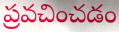
ప్రవచించడం